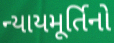
ન્યાયમૂર્તિનો